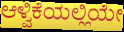
ಆಳ್ವಿಕೆಯಲ್ಲಿಯೇ